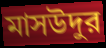
মাসউদুর